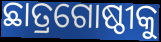
ଛାତ୍ରଗୋଷ୍ଠୀକୁ